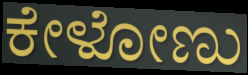
ಕೇಳೋಣು